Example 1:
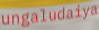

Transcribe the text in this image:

ungaludaiya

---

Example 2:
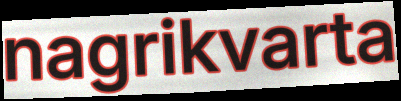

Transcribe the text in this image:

nagrikvarta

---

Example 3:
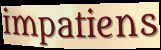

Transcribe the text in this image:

impatiens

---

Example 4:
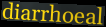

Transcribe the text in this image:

diarrhoeal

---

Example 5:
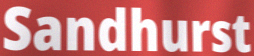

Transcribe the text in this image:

Sandhurst